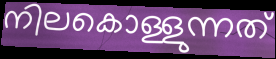
നിലകൊള്ളുന്നത്